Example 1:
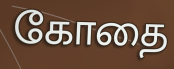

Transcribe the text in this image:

கோதை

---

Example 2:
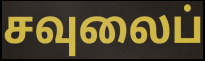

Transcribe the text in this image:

சவுலைப்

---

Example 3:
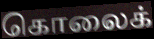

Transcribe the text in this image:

கொலைக்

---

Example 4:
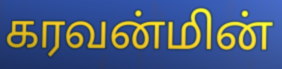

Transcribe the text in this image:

கரவன்மின்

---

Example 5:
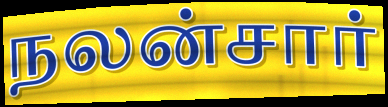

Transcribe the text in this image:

நலன்சார்